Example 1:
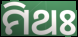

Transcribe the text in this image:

ମିଥଃ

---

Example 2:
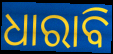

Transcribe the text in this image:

ଧାରାବି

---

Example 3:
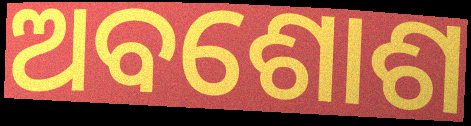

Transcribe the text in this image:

ଅବଶୋଶ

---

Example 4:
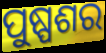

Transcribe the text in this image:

ପୁଷ୍ପଶର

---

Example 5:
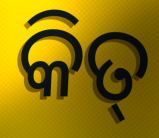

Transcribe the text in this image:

କିତ୍